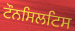
ਟੌਨਸਿਲਟਿਸ